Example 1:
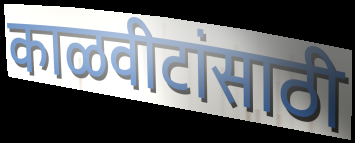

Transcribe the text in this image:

काळवीटांसाठी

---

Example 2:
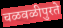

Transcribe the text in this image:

चळवळीपुरते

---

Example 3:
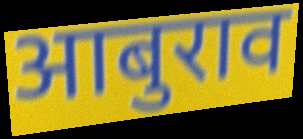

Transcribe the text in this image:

आबुराव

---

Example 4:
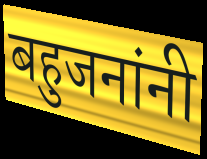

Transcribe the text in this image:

बहुजनांनी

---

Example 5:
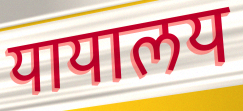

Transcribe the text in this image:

यायालय